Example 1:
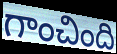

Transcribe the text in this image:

గాంచింది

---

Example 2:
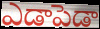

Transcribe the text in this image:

ఎడాపెడా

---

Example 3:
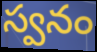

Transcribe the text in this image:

స్వనం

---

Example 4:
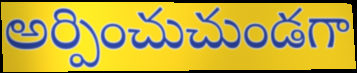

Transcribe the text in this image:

అర్పించుచుండగా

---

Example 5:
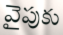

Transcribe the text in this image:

వైపుకు